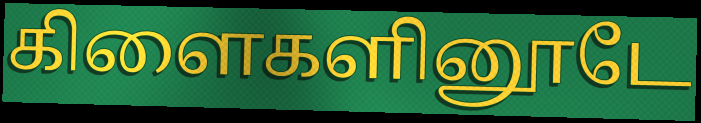
கிளைகளினூடே